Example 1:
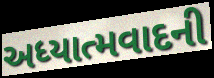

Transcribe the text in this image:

અધ્યાત્મવાદની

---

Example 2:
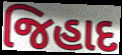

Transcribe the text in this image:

જિહાદ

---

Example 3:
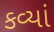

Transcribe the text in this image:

કવ્યાં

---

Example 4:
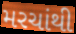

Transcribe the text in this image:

મરચાંથી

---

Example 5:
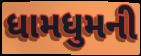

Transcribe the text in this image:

ધામધુમની